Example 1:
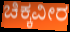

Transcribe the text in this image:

ಚಿಕ್ಕವೀರ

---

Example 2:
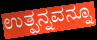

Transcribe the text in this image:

ಉತ್ಪನ್ನವನ್ನೂ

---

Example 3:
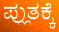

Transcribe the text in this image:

ಪ್ಲುತಕ್ಕೆ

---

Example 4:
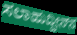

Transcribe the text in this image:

ಸಲಾಹುದ್ದೀನ್‍ನ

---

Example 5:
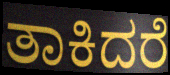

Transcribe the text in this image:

ತಾಕಿದರೆ